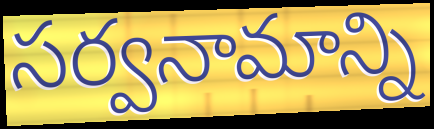
సర్వనామాన్ని